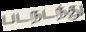
படநடந்து